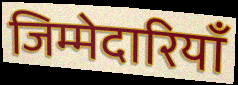
जिम्मेदारियाँ